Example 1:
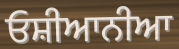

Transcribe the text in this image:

ਓਸ਼ੀਆਨੀਆ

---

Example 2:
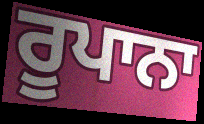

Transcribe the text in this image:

ਰੂਪਾਨਾ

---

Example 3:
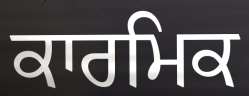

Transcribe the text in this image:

ਕਾਰਮਿਕ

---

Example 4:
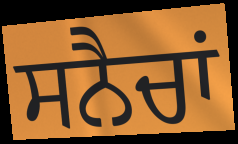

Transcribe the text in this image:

ਸਨੈਚਾਂ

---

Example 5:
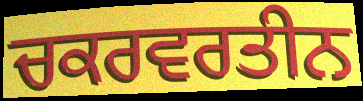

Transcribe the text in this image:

ਚਕਰਵਰਤੀਨ